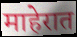
माहेरात